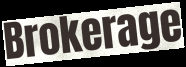
Brokerage